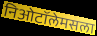
निओटॉलेमसला